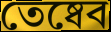
তেষ্বেব